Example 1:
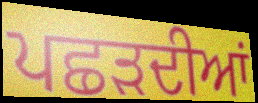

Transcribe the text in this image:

ਪਛੜਦੀਆਂ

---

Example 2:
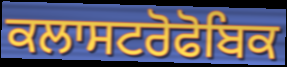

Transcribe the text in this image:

ਕਲਾਸਟਰੋਫੋਬਿਕ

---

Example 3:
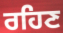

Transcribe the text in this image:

ਰਹਿਣ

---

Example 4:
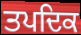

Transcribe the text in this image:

ਤਪਦਿਕ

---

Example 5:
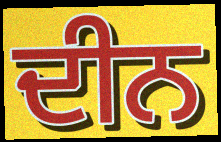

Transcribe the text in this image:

ਦੀਨ